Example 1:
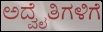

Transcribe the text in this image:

ಅದ್ವೈತಿಗಳಿಗೆ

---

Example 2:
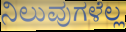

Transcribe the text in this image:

ನಿಲುವುಗಳೆಲ್ಲ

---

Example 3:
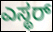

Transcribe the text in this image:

ಎಸ್ಥರ್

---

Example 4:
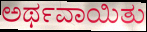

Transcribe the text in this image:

ಅರ್ಥವಾಯಿತು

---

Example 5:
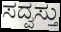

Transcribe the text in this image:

ಸದ್ವಸ್ತು